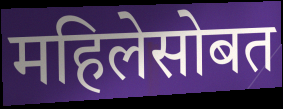
महिलेसोबत